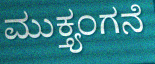
ಮುಕ್ತ್ಯಂಗನೆ